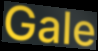
Gale